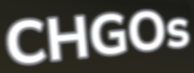
CHGOs